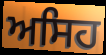
ਅਸਿਹ